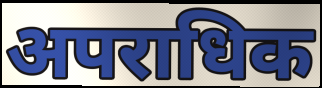
अपराधिक